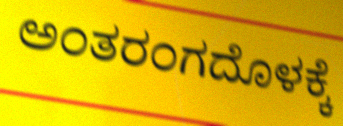
ಅಂತರಂಗದೊಳಕ್ಕೆ